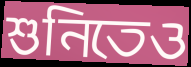
শুনিতেও